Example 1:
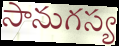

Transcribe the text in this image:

సానుగస్య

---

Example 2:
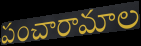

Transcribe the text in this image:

పంచారామాల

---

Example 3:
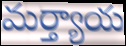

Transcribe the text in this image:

మర్త్యాయ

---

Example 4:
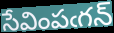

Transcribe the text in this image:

సేవింపఁగన్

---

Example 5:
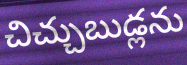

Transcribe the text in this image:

చిచ్చుబుడ్లను